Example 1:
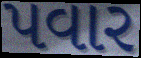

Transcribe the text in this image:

પવાર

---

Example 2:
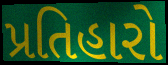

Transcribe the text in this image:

પ્રતિહારો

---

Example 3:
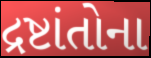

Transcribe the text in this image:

દ્રષ્ટાંતોના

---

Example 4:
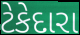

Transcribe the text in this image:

ટેકેદારા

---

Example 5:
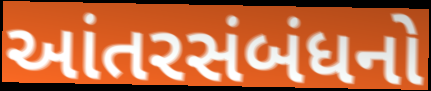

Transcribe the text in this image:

આંતરસંબંધનો